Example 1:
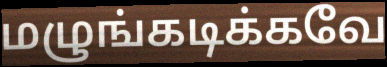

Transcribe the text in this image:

மழுங்கடிக்கவே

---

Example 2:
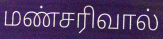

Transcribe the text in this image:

மண்சரிவால்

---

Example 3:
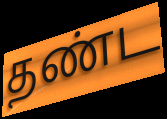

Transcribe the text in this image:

தண்ட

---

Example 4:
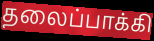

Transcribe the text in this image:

தலைப்பாக்கி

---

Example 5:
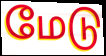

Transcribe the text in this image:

மேடு